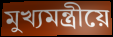
মুখ্যমন্ত্ৰীয়ে